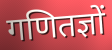
गणितज्ञों